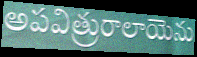
అపవిత్రురాలాయెను